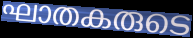
ഘാതകരുടെ